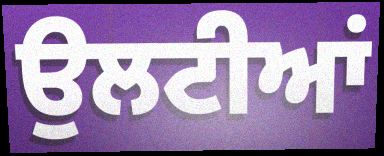
ਉਲਟੀਆਂ